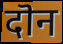
दॊन